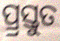
ପ୍ର୍ରସ୍ତୁତ